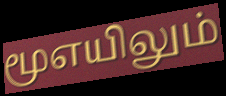
மூஎயிலும்